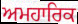
ਅਮਹਾਰਿਕ